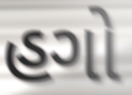
હગો